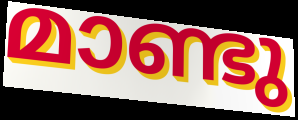
മാണ്ടു